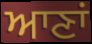
ਆਣਾਂ